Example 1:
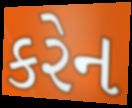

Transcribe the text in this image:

કરેન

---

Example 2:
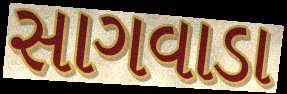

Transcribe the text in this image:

સાગવાડા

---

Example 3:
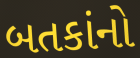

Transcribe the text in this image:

બતકાંનો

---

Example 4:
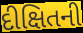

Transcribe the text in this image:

દીક્ષિતની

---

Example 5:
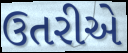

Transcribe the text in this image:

ઉતરીએ